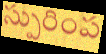
స్పురింప